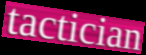
tactician